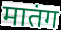
मातंग